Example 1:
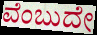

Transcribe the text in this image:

ವೆಂಬುದೇ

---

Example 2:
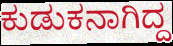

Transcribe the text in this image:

ಕುಡುಕನಾಗಿದ್ದ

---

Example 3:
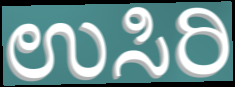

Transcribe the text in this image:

ಉಸಿರಿ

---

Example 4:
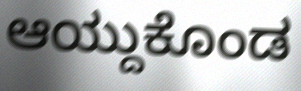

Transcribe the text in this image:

ಆಯ್ದುಕೊಂಡ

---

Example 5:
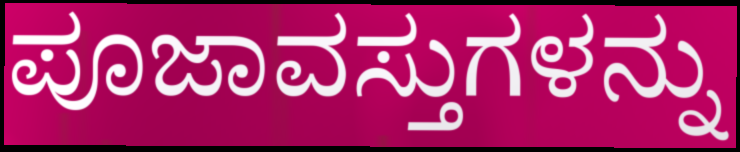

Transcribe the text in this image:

ಪೂಜಾವಸ್ತುಗಳನ್ನು